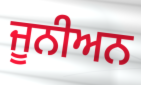
ਜੂਨੀਅਨ